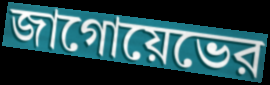
জাগোয়েভের